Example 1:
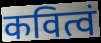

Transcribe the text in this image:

कवित्वं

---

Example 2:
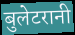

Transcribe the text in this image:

बुलेटरानी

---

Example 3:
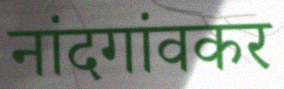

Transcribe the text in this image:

नांदगांवकर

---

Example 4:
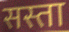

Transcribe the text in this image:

सस्‍ता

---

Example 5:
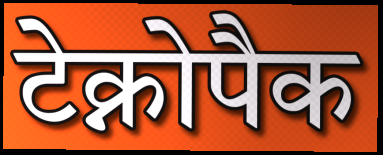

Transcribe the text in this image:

टेक्नोपैक